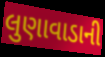
લુણાવાડાની